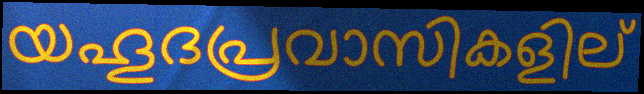
യഹൂദപ്രവാസികളില്